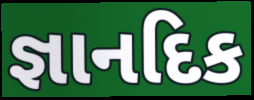
જ્ઞાનદિક